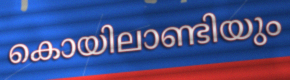
കൊയിലാണ്ടിയും